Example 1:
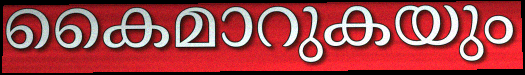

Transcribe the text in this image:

കൈമാറുകയും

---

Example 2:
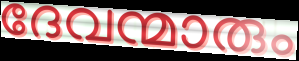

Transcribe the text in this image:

ദേവന്മാരും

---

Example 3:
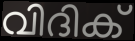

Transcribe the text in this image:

വിദിക്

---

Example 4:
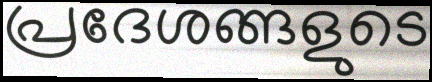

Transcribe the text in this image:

പ്രദേശങ്ങളുടെ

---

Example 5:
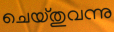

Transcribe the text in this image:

ചെയ്തുവന്നു